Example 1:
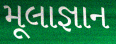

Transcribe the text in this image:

મૂલાજ્ઞાન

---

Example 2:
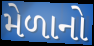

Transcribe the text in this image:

મેળાનો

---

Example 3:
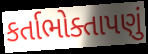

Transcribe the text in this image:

કર્તાભોક્તાપણું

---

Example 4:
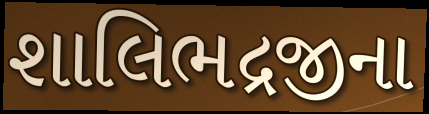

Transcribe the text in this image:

શાલિભદ્રજીના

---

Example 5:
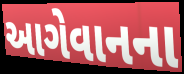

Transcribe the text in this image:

આગેવાનના